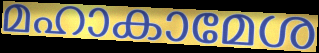
മഹാകാമേശ